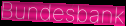
Bundesbank